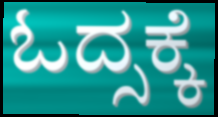
ಓದ್ಸಕ್ಕೆ